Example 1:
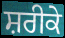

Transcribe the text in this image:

ਸ਼ਰੀਕੇ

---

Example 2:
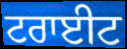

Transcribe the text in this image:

ਟਰਾਈਟ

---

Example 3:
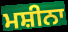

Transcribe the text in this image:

ਮਸ਼ੀਨਾ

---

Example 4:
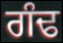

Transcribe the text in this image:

ਗੰਢ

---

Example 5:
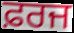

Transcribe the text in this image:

ਫ਼ਰਜ